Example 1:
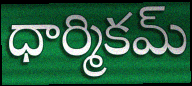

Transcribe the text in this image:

ధార్మికమ్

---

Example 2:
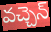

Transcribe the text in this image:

వచ్చెన్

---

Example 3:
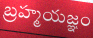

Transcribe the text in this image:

బ్రహ్మయజ్ఞం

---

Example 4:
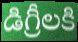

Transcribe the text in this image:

డిగ్రీలకి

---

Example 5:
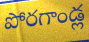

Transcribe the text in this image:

పోరగాండ్ల